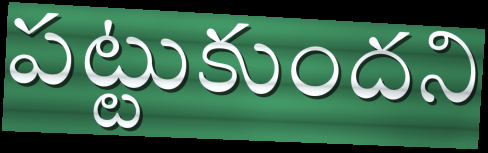
పట్టుకుందని